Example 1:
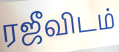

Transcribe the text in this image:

ரஜீவிடம்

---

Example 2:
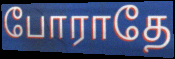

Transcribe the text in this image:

போராதே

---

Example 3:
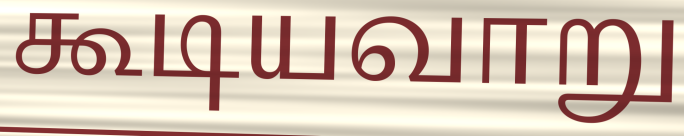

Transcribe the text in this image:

கூடியவாறு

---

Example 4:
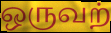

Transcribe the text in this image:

ஒருவற்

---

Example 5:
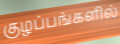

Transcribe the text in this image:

குழப்பங்களில்